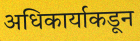
अधिकार्याकडून